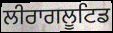
ਲੀਰਾਗਲੂਟਿਡ